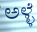
ಅಳ್ಳೆ